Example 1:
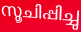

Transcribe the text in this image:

സൂചിപ്പിച്ചു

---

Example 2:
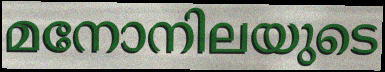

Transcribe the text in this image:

മനോനിലയുടെ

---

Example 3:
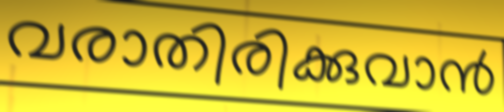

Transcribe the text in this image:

വരാതിരിക്കുവാൻ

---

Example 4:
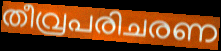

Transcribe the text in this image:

തീവ്രപരിചരണ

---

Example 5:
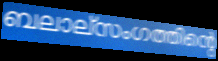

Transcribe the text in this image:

ബലാല്സംഗത്തിന്റെ